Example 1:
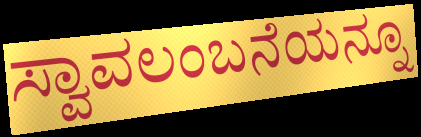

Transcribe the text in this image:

ಸ್ವಾವಲಂಬನೆಯನ್ನೂ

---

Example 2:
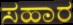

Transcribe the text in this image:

ಸಹಾರ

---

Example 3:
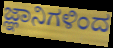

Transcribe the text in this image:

ಜ್ಞಾನಿಗಳಿಂದ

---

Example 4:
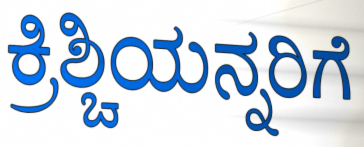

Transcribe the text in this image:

ಕ್ರಿಶ್ಚಿಯನ್ನರಿಗೆ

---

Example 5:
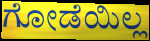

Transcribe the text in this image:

ಗೋಡೆಯಿಲ್ಲ